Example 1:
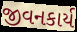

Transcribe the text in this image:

જીવનકાર્ય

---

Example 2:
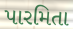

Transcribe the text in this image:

પારમિતા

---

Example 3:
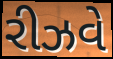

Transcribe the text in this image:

રીઝવે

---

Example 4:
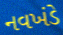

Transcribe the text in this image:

નવખંડે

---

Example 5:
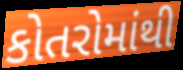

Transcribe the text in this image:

કોતરોમાંથી